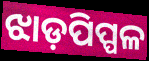
ଝାଡ଼ପିପ୍ପଳ